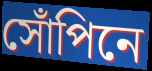
সোঁপিনে